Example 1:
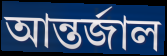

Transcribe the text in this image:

আন্তর্জাল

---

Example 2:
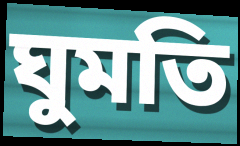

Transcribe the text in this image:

ঘুমতি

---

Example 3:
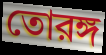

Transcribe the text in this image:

তোরঙ্গ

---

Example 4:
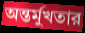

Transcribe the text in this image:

অন্তর্মুখতার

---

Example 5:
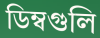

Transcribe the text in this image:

ডিম্বগুলি